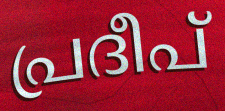
പ്രദീപ്